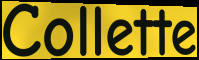
Collette